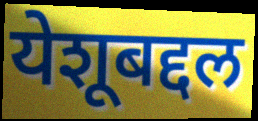
येशूबद्दल